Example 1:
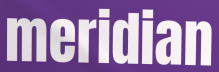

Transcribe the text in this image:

meridian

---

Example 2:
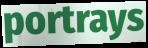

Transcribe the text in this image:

portrays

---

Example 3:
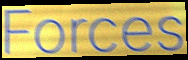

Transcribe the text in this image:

Forces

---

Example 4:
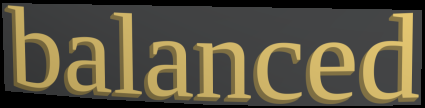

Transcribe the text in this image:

balanced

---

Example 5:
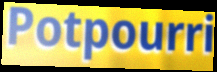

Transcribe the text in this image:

Potpourri